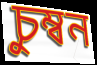
চুম্বন